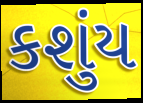
કશુંય